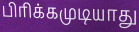
பிரிக்கமுடியாது